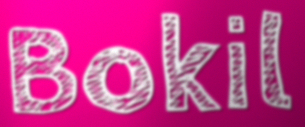
Bokil